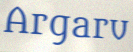
Argaru